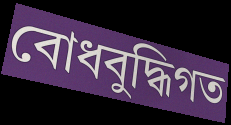
বোধবুদ্ধিগত